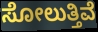
ಸೋಲುತ್ತಿವೆ